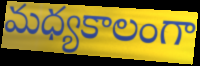
మధ్యకాలంగా